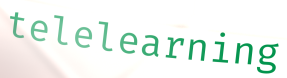
telelearning